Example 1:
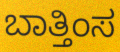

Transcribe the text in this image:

ಬಾತ್ತಿಂಸ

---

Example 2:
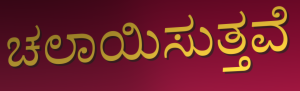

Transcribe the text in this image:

ಚಲಾಯಿಸುತ್ತವೆ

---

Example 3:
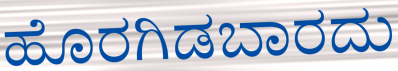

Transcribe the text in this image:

ಹೊರಗಿಡಬಾರದು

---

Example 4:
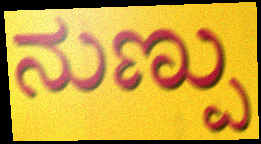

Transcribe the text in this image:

ನುಣ್ಪು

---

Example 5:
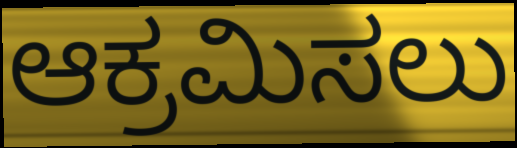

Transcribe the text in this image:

ಆಕ್ರಮಿಸಲು